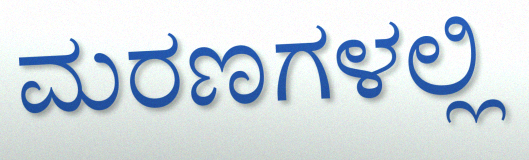
ಮರಣಗಳಲ್ಲಿ